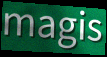
magis